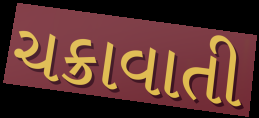
ચક્રાવાતી